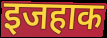
इजहाक